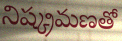
నిష్క్రమణతో